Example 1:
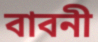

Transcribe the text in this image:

বাবনী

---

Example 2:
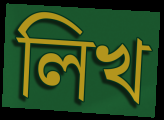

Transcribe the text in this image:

লিখ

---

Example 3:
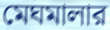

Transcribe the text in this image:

মেঘমালার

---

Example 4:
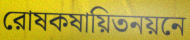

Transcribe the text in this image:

রোষকষায়িতনয়নে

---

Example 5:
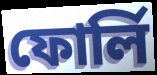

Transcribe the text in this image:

ফোর্লি